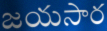
జయసార